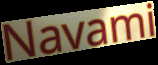
Navami